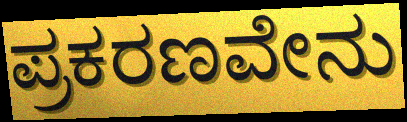
ಪ್ರಕರಣವೇನು